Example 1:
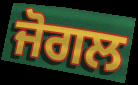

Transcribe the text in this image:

ਜੋਗਲ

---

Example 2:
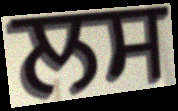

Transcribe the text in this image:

ਲਸ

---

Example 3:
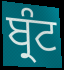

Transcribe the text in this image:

ਬ੍ਰੰਟ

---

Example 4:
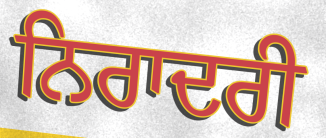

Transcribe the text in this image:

ਨਿਰਾਦਰੀ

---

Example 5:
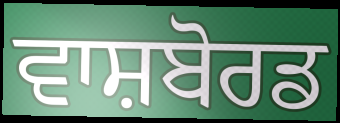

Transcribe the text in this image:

ਵਾਸ਼ਬੋਰਡ